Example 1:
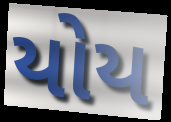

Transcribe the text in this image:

યોય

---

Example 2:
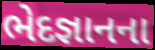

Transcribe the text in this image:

ભેદજ્ઞાનના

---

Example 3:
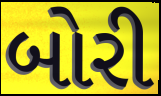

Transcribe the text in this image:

બોરી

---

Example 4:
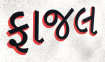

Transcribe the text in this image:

ફાજલ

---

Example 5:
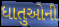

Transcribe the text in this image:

ધાતુઓની